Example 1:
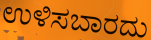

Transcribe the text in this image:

ಉಳಿಸಬಾರದು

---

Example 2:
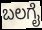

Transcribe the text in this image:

ಬಲಗೈ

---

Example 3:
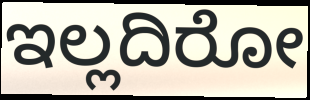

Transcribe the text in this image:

ಇಲ್ಲದಿರೋ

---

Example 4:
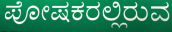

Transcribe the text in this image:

ಪೋಷಕರಲ್ಲಿರುವ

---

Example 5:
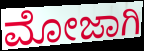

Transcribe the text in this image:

ಮೋಜಾಗಿ